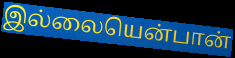
இல்லையென்பான்